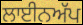
ਲਾਈਨਅੱਪ